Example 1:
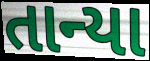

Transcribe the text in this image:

તાન્યા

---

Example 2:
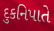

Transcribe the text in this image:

દુકનિપાતે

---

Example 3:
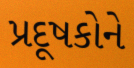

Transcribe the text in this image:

પ્રદૂષકોને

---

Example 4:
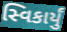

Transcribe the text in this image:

સ્વિકાર્યું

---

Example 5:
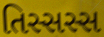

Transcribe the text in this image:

તિસ્સસ્સ